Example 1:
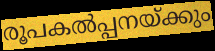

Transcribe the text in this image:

രൂപകൽപ്പനയ്ക്കും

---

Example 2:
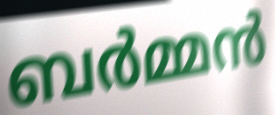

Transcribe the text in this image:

ബർമ്മൻ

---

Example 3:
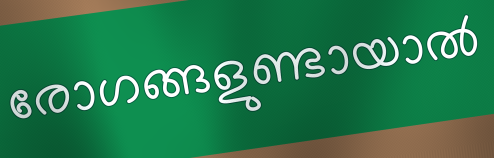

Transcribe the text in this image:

രോഗങ്ങളുണ്ടായാൽ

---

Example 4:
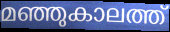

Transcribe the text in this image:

മഞ്ഞുകാലത്ത്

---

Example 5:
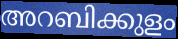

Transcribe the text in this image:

അറബിക്കുളം